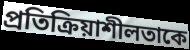
প্রতিক্রিয়াশীলতাকে